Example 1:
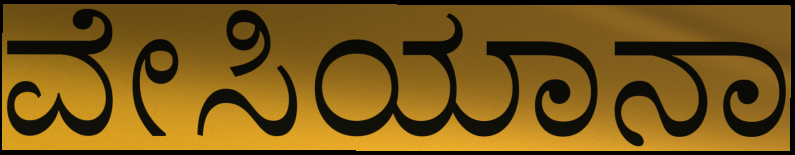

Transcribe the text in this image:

ವೇಸಿಯಾನಾ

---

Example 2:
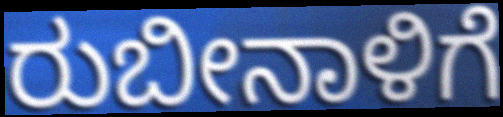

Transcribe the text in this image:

ರುಬೀನಾಳಿಗೆ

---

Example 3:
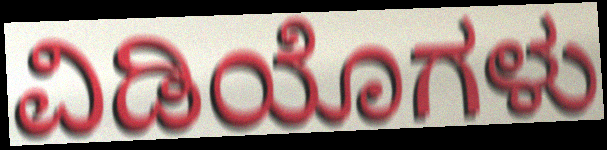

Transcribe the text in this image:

ವಿಡಿಯೊಗಳು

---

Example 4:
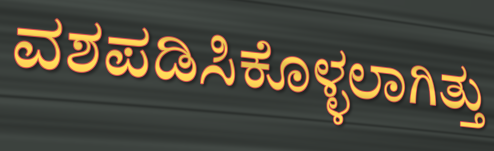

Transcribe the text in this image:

ವಶಪಡಿಸಿಕೊಳ್ಳಲಾಗಿತ್ತು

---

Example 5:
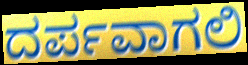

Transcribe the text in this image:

ದರ್ಪವಾಗಲಿ